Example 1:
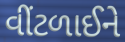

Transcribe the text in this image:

વીંટળાઈને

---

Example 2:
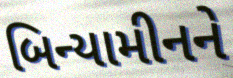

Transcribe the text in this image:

બિન્યામીનને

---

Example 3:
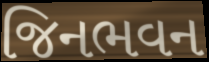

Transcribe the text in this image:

જિનભવન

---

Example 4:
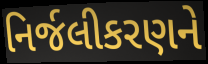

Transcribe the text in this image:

નિર્જલીકરણને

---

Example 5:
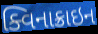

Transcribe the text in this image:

ક્વિનાક્રાઇન